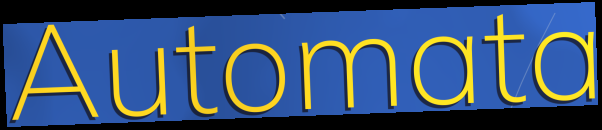
Automata